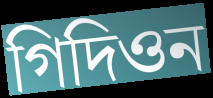
গিদিওন